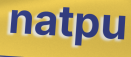
natpu